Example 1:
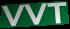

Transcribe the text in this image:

VVT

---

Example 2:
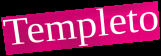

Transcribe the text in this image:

Templeto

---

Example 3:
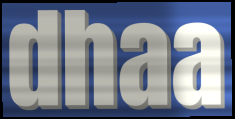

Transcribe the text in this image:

dhaa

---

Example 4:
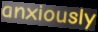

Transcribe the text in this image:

anxiously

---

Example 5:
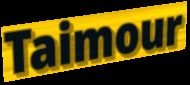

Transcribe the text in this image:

Taimour